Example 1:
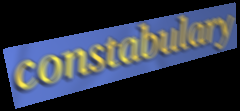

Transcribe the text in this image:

constabulary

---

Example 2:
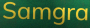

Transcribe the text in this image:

Samgra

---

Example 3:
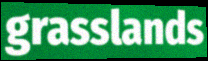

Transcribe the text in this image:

grasslands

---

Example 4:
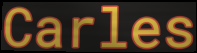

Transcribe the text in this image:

Carles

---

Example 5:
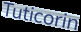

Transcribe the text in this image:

Tuticorin